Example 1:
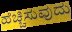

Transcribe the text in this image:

ಹೆಚ್ಚಿಸುವುದು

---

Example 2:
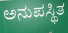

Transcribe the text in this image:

ಅನುಪಸ್ಥಿತ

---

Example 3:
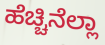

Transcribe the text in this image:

ಹೆಚ್ಚಿನೆಲ್ಲಾ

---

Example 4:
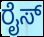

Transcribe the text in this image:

ರೈಸ್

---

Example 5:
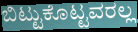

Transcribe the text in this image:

ಬಿಟ್ಟುಕೊಟ್ಟವರಲ್ಲ